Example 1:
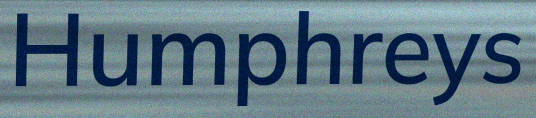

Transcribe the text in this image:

Humphreys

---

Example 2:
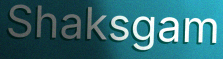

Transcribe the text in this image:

Shaksgam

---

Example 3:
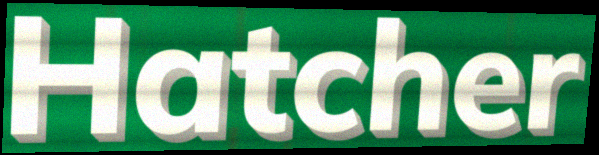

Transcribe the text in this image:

Hatcher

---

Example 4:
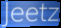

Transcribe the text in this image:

Jeetz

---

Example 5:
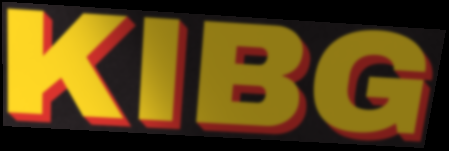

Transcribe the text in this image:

KIBG